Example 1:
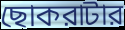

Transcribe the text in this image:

ছোকরাটার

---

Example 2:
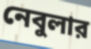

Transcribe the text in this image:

নেবুলার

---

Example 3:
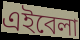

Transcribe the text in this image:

এইবেলা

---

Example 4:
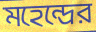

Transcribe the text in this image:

মহেন্দ্রের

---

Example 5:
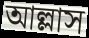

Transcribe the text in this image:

আল্লাস